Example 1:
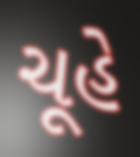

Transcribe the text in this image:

ચૂહે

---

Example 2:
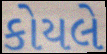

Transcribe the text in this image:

કોયલે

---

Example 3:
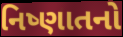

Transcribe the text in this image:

નિષ્ણાતનો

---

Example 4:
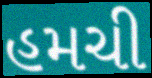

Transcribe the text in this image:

હમચી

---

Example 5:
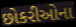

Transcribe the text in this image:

છોકરીઓના